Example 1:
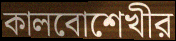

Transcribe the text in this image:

কালবোশেখীর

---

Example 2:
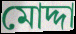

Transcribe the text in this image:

মোদ্দা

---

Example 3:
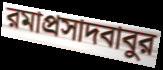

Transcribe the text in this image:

রমাপ্রসাদবাবুর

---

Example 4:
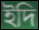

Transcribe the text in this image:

ইদি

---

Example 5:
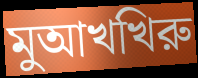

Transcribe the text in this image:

মুআখখিরু